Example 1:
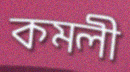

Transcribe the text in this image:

কমলী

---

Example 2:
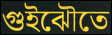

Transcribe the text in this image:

গুইঝৌতে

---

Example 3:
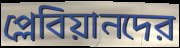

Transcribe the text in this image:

প্লেবিয়ানদের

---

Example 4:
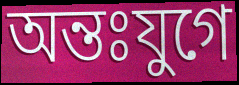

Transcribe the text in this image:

অন্তঃযুগে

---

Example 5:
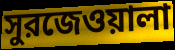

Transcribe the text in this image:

সুরজেওয়ালা